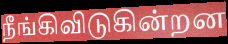
நீங்கிவிடுகின்றன